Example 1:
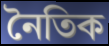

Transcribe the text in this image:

নৈতিক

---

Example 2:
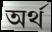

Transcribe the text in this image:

অৰ্থ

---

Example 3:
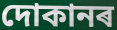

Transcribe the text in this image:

দোকানৰ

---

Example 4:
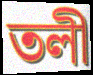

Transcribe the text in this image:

তলী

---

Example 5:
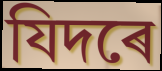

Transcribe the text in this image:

যিদৰে